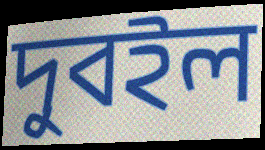
দুবইল